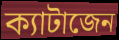
ক্যাটাজেন